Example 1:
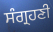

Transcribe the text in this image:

ਸੰਗ੍ਰਹਣੀ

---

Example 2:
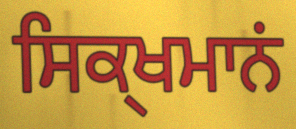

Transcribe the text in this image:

ਸਿਕ੍ਖਮਾਨਂ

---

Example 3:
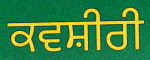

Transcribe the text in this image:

ਕਵਸ਼ੀਰੀ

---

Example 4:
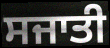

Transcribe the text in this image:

ਸਜਾਤੀ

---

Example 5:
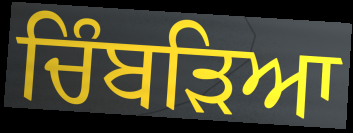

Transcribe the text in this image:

ਚਿੰਬੜਿਆ